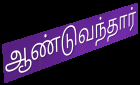
ஆண்டுவந்தார்